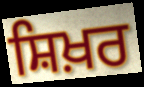
ਸ਼ਿਖ਼ਰ